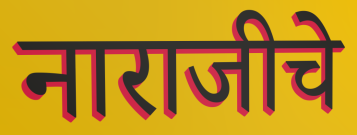
नाराजीचे